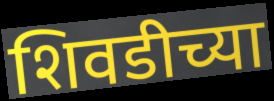
शिवडीच्या